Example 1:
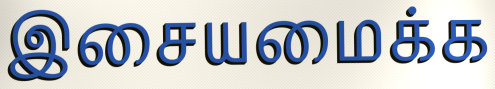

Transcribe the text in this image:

இசையமைக்க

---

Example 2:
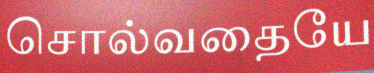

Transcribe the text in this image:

சொல்வதையே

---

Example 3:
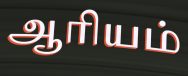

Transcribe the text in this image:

ஆரியம்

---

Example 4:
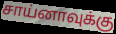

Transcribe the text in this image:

சாய்னாவுக்கு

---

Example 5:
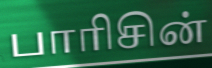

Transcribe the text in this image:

பாரிசின்